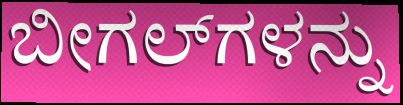
ಬೀಗಲ್‌ಗಳನ್ನು